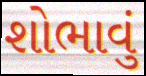
શોભાવું